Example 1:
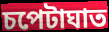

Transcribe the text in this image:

চপেটাঘাত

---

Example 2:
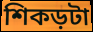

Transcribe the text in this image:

শিকড়টা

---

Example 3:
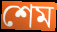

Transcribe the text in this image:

শেম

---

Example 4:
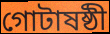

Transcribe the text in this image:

গোটাষষ্ঠী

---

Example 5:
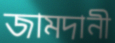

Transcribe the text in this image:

জামদানী